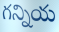
గన్నియ